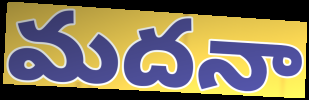
మదనా